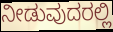
ನೀಡುವುದರಲ್ಲಿ